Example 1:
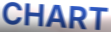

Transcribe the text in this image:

CHART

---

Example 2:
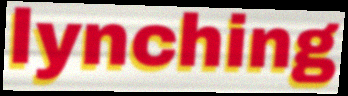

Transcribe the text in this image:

lynching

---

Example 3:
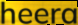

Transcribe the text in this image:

heera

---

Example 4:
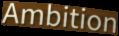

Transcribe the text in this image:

Ambition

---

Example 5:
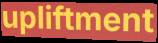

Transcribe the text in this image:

upliftment